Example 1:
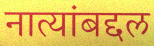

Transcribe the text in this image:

नात्यांबद्दल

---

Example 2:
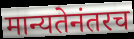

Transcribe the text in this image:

मान्यतेनंतरच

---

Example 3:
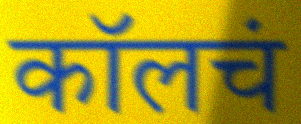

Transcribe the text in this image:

कॉलचं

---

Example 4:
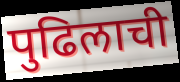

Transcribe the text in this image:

पुढिलाची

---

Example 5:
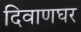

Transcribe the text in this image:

दिवाणघर